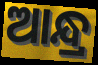
ଆନ୍ଧ୍ର